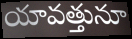
యావత్తునూ